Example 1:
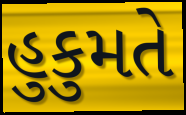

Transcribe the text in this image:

હુકુમતે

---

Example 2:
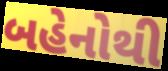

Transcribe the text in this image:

બહેનોથી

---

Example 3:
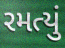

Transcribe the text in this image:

રમત્યું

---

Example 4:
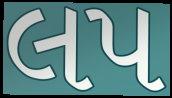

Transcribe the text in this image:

લપ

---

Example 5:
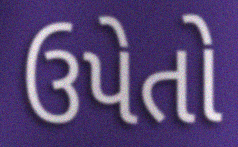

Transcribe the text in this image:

ઉપેતો